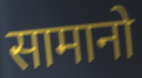
सामानो